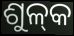
ଶୁଳ୍‌କ